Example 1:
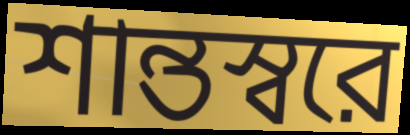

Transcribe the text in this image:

শান্তস্বরে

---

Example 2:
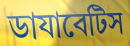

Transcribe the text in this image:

ডাযাবেটিস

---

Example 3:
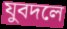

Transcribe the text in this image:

যুবদলে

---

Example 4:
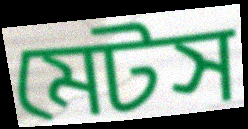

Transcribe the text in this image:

মেটস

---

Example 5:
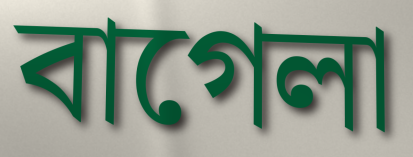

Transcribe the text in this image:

বাগেলা